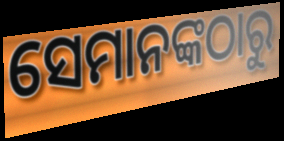
ସେମାନଙ୍କଠାରୁ